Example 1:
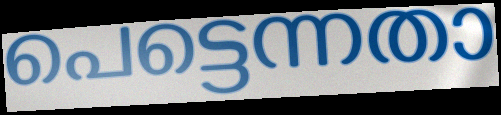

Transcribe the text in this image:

പെട്ടെന്നതാ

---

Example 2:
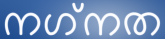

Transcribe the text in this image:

നഗ്‌നത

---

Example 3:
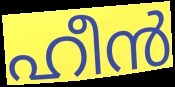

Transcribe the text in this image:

ഹീൻ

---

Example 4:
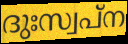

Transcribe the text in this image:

ദുഃസ്വപ്ന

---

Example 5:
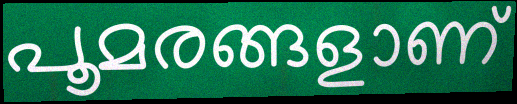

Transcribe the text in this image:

പൂമരങ്ങളാണ്